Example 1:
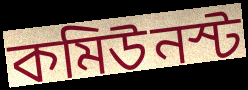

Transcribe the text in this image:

কমিউনস্ট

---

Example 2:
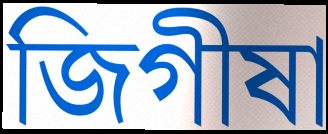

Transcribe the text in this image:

জিগীষা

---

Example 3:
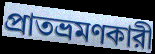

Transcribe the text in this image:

প্রাতভ্রমণকারী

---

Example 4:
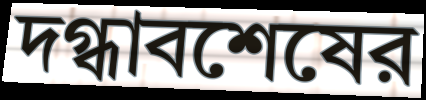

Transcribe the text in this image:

দগ্ধাবশেষের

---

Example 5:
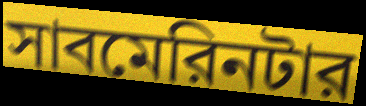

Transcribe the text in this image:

সাবমেরিনটার